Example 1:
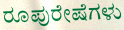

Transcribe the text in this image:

ರೂಪುರೇಷೆಗಳು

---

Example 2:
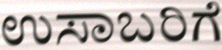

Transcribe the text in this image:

ಉಸಾಬರಿಗೆ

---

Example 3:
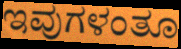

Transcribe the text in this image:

ಇವುಗಳಂತೂ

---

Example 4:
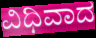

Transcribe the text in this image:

ವಿಧಿವಾದ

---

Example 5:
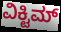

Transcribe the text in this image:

ವಿಕ್ಟಿಮ್